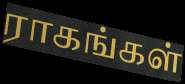
ராகங்கள்